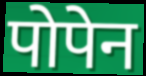
पोपेन